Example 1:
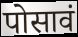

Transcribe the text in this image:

पोसावं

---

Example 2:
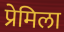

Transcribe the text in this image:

प्रेमिला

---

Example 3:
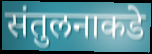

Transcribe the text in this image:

संतुलनाकडे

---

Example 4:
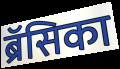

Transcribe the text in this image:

ब्रॅसिका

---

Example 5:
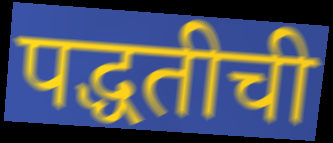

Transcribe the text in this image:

पद्धतीची